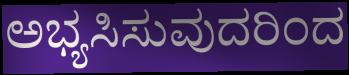
ಅಭ್ಯಸಿಸುವುದರಿಂದ